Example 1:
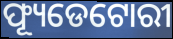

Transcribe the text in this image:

ଫ୍ୟୂଡେଟୋରୀ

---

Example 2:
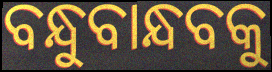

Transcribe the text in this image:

ବନ୍ଧୁବାନ୍ଧବକୁ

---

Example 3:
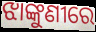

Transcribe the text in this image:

ଝାଙ୍କୁଣୀରେ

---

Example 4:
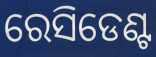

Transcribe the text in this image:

ରେସିଡେଣ୍ଟ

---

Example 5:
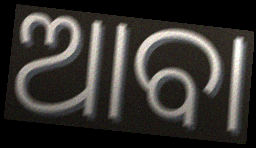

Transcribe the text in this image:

ଆବା